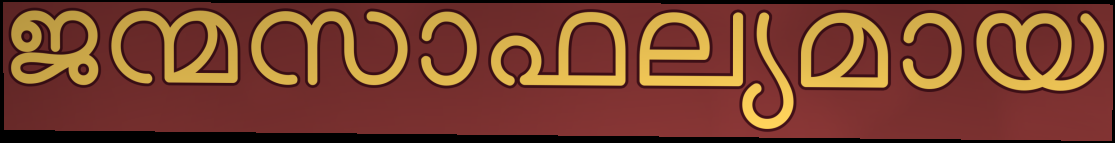
ജന്മസാഫല്യമായ